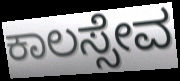
ಕಾಲಸ್ಸೇವ